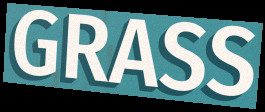
GRASS